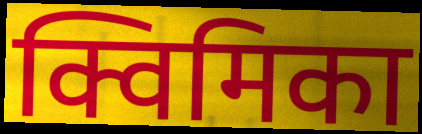
क्विमिका